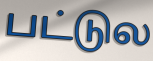
பட்டுல